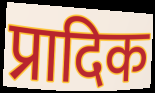
प्रादिक